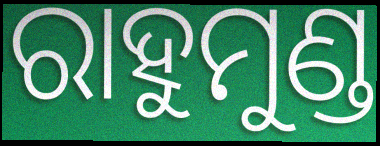
ରାହୁମୁଣ୍ଡ